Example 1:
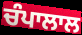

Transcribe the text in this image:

ਚੰਪਾਲਾਲ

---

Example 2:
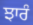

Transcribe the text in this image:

ਝਾਰੰ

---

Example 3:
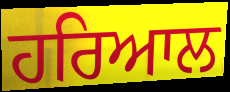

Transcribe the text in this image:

ਹਰਿਆਲ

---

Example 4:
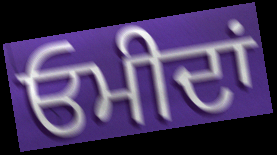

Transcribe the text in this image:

ਓਮੀਦਾਂ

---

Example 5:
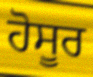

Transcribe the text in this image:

ਹੋਸੂਰ